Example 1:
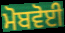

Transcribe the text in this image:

ਮੋਬਵੋਈ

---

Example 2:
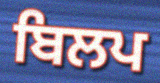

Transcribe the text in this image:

ਬਿਲਪ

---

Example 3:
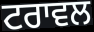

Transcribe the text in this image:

ਟਰਾਵਲ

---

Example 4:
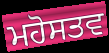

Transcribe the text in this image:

ਮਹੋਸਤਵ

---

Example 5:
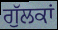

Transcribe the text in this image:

ਗੁੱਲਕਾਂ